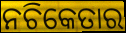
ନଚିକେତାର